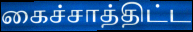
கைச்சாத்திட்ட